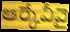
ఆర్కేవీవై